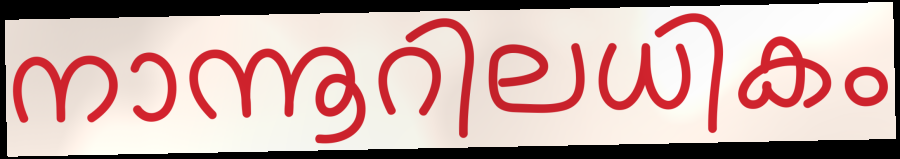
നാന്നൂറിലധികം